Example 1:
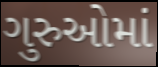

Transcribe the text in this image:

ગુરુઓમાં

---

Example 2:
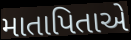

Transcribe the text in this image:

માતાપિતાએ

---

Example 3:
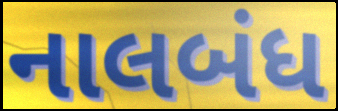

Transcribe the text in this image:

નાલબંધ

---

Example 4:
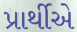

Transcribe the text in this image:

પ્રાર્થીએ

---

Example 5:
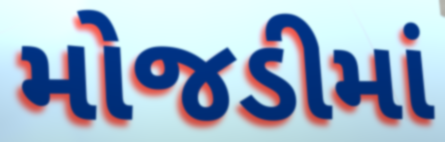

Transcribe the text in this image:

મોજડીમાં